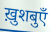
ख़ुशबुएँ